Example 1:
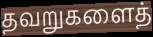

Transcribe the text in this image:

தவறுகளைத்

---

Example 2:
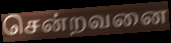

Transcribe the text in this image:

சென்றவனை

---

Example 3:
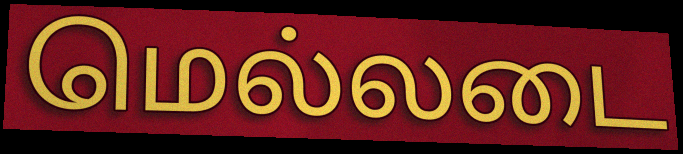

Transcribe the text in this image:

மெல்லடை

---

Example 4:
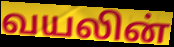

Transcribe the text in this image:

வயலின்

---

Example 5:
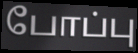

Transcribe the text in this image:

போப்பு